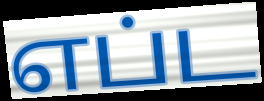
எப்ட